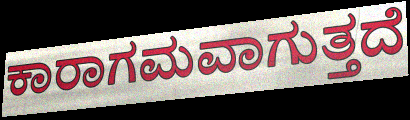
ಕಾರಾಗಮವಾಗುತ್ತದೆ